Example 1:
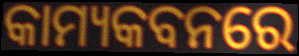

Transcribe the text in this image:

କାମ୍ୟକବନରେ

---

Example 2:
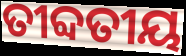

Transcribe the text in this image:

ତୀବ୍ଦତୀୟ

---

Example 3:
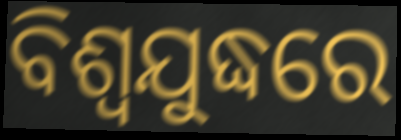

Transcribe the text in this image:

ବିଶ୍ଵଯୁଦ୍ଧରେ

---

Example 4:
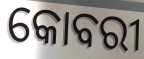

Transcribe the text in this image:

କୋବରୀ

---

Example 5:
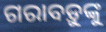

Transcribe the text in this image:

ଗରାବଡ଼ୁଙ୍କୁ